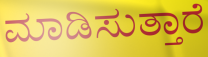
ಮಾಡಿಸುತ್ತಾರೆ